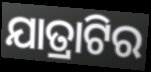
ଯାତ୍ରାଟିର